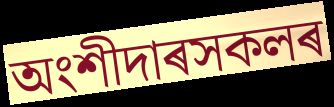
অংশীদাৰসকলৰ